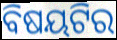
ବିଷୟଟିର